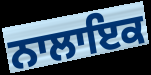
ਨਾਲਾਇਕ